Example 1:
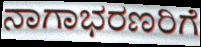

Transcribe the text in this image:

ನಾಗಾಭರಣರಿಗೆ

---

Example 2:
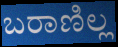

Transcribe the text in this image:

ಬರಾಣಿಲ್ಲ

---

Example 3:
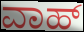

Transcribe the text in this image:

ವಾಹ್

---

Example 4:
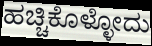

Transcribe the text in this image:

ಹಚ್ಚಿಕೊಳ್ಳೋದು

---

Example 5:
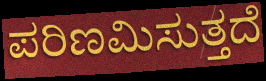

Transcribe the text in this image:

ಪರಿಣಮಿಸುತ್ತದೆ